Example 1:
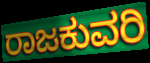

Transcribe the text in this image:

ರಾಜಕುವರಿ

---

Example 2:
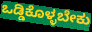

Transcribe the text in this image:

ಒಡ್ಡಿಕೊಳ್ಳಬೇಕು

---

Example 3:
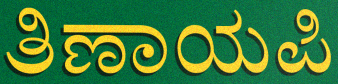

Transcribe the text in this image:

ತಿಣಾಯಪಿ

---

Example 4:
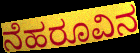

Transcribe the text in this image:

ನೆಹರೂವಿನ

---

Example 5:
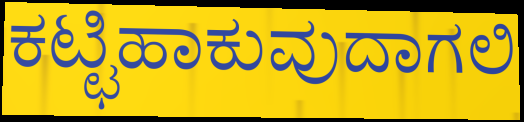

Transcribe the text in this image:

ಕಟ್ಟಿಹಾಕುವುದಾಗಲಿ